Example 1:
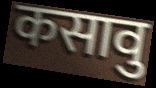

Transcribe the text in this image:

कसावु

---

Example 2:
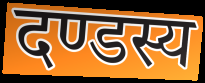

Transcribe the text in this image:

दण्डस्य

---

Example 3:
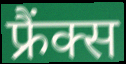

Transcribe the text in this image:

फ्रैंक्स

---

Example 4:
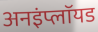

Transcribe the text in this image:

अनइंप्लॉयड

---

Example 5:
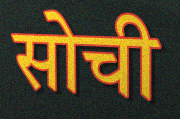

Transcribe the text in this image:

सोची